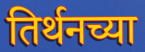
तिर्थनच्या